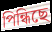
পিন্ধিছে